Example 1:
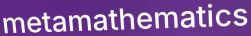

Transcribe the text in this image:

metamathematics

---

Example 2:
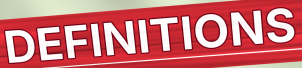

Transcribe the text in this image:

DEFINITIONS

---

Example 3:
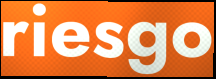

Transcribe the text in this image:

riesgo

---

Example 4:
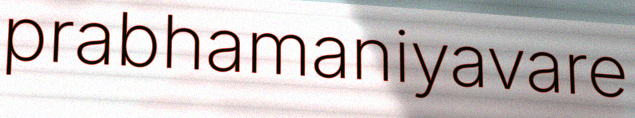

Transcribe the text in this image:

prabhamaniyavare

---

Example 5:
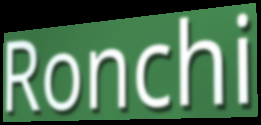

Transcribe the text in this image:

Ronchi